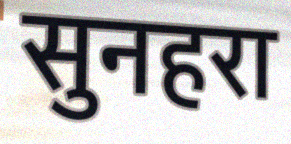
सुनहरा